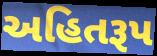
અહિતરૂપ